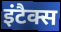
इंटैक्स